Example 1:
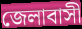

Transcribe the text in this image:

জেলাবাসী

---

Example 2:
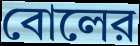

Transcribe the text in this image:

বোলের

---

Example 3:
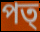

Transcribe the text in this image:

পত্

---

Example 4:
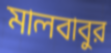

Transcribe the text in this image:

মালবাবুর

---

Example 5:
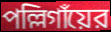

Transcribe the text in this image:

পল্লিগাঁয়ের